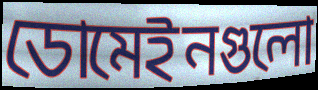
ডোমেইনগুলো